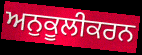
ਅਨੁਕੂਲੀਕਰਨ